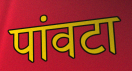
पांवटा